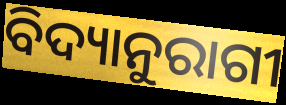
ବିଦ୍ୟାନୁରାଗୀ